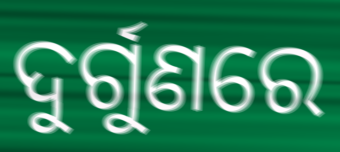
ଦୁର୍ଗୁଣରେ